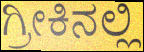
ಗ್ರೀಕಿನಲ್ಲಿ